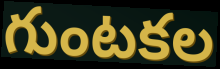
గుంటకల